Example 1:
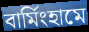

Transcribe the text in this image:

বার্মিংহামে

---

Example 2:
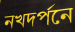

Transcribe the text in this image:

নখদর্পনে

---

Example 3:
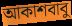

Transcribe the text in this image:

আকাশবাবু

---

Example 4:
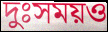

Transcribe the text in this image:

দুঃসময়ও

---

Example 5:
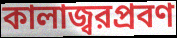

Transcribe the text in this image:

কালাজ্বরপ্রবণ